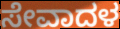
ಸೇವಾದಳ